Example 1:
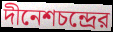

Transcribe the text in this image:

দীনেশচন্দ্রের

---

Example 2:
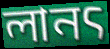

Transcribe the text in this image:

লানৎ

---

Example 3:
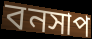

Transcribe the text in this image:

বনসাপ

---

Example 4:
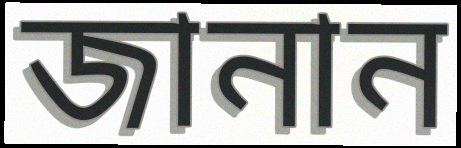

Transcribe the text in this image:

জানান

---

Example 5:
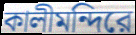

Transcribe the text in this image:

কালীমন্দিরে